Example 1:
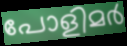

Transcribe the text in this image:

പോളിമർ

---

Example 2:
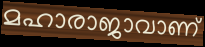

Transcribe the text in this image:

മഹാരാജാവാണ്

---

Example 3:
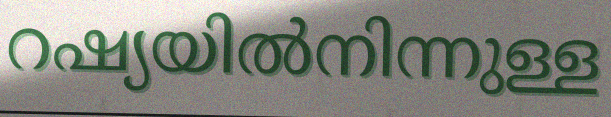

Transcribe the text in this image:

റഷ്യയിൽനിന്നുള്ള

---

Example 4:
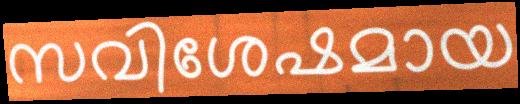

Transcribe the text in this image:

സവിശേഷമായ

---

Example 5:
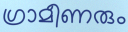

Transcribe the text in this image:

ഗ്രാമീണരും